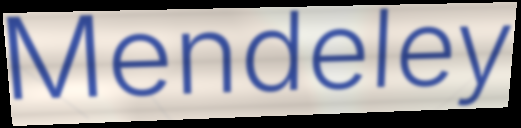
Mendeley